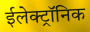
ईलेक्ट्रॉनिक